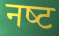
नष्‍ट